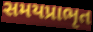
સમયપ્રાભૃત